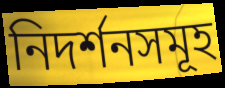
নিদর্শনসমূহ